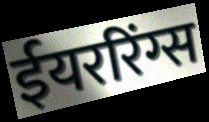
ईयररिंग्स